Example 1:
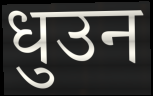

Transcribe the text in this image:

धुउन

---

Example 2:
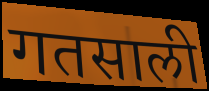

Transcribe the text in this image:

गतसाली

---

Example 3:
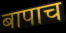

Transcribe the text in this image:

बापाच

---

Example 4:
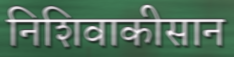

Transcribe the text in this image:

निशिवाकीसान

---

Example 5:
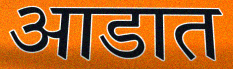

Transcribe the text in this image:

आडात